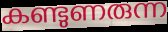
കണ്ടുണരുന്ന